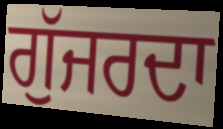
ਗੁੱਜਰਦਾ